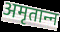
अमृतान्न